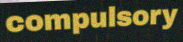
compulsory